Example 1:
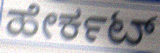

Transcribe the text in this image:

ಹೇರ್ಕಟ್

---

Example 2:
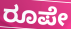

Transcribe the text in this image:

ರೂಪೇ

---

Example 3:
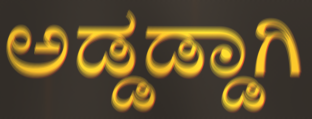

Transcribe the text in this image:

ಅಡ್ಡಡ್ಡಾಗಿ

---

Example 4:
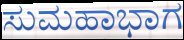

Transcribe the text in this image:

ಸುಮಹಾಭಾಗ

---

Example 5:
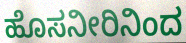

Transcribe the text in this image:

ಹೊಸನೀರಿನಿಂದ